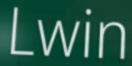
Lwin